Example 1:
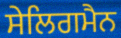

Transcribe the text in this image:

ਸੇਲਿਗਮੈਨ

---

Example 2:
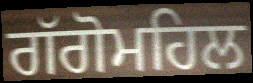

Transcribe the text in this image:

ਗੱਗੋਮਹਿਲ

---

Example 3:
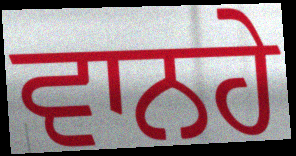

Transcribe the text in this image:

ਵਾਨਹੇ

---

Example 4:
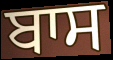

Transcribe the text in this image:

ਬਾਸ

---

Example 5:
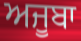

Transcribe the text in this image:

ਅਜੂਬਾ